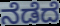
ನೆಡೆದೆ